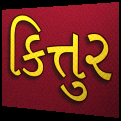
કિત્તુર